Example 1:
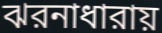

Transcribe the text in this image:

ঝরনাধারায়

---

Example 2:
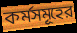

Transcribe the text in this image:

কর্মসমূহের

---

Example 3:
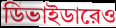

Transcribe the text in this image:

ডিভাইডারেও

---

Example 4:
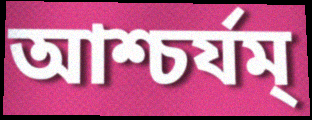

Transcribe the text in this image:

আশ্চর্যম্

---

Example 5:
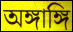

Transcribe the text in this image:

অঙ্গাঙ্গি